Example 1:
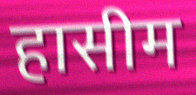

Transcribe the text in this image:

हासीम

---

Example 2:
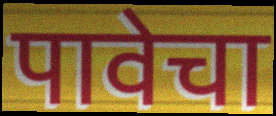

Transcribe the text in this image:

पावेचा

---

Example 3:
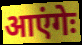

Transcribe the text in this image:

आएंगेः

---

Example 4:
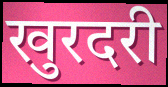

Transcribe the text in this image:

खुरदरी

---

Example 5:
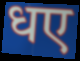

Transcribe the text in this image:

धए